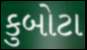
કુબોટા